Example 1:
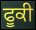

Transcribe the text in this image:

ਫੂਕੀ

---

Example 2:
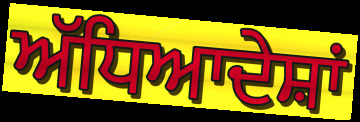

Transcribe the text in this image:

ਅੱਧਿਆਦੇਸ਼ਾਂ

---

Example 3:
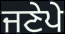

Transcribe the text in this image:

ਜਣੇਪੇ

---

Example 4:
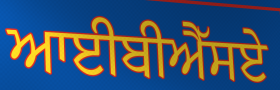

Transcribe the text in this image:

ਆਈਬੀਐੱਸਏ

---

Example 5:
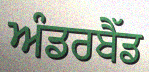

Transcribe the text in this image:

ਅੰਡਰਬੈੱਡ